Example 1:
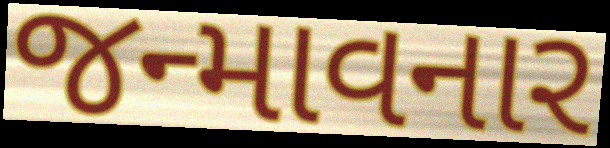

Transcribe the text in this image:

જન્માવનાર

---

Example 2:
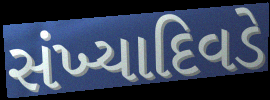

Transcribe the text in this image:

સંખ્યાદિવડે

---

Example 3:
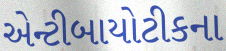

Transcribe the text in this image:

એન્ટીબાયોટીકના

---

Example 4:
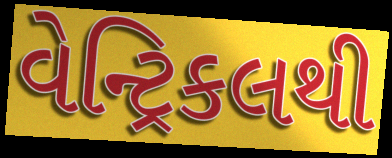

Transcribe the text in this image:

વેન્ટ્રિકલથી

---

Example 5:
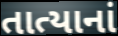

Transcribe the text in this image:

તાત્યાનાં